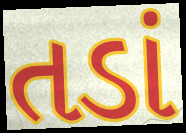
તડાં